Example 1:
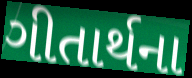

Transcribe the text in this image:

ગીતાર્થના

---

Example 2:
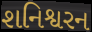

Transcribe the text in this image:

શનિશ્વરન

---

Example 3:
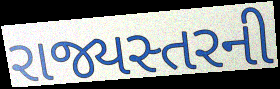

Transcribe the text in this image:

રાજ્યસ્તરની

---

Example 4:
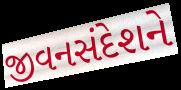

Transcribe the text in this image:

જીવનસંદેશને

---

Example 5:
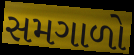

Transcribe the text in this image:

સમગાળો